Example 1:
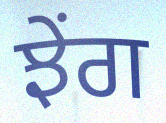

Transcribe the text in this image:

ਝੇਂਗ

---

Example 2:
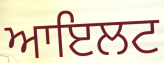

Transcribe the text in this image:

ਆਇਲਟ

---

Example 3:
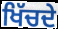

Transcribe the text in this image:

ਖਿੱਚਦੇ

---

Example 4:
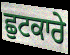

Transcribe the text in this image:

ਛੁਟਕਾਰੇ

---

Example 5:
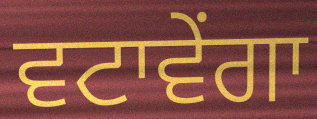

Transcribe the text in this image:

ਵਟਾਵੇਂਗਾ